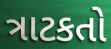
ત્રાટકતો